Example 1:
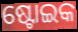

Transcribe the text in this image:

ଷ୍ଟୋଇକ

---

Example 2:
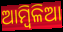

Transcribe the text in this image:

ଆମ୍ୱିଳିଆ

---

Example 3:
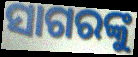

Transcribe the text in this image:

ସାଗରଙ୍କୁ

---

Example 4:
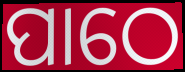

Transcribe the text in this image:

ପାଠେ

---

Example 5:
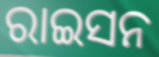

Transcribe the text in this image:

ରାଇସନ